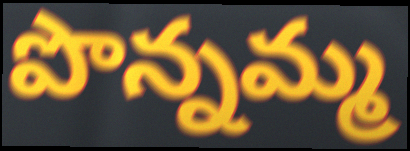
పొన్నమ్మ